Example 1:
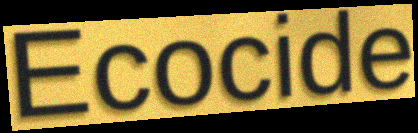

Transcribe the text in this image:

Ecocide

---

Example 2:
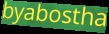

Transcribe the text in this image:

byabostha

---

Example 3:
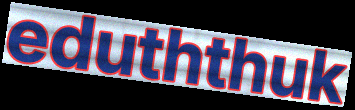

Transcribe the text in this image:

eduththuk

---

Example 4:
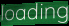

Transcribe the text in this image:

loading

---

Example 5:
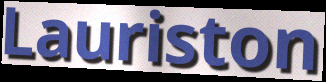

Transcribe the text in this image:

Lauriston